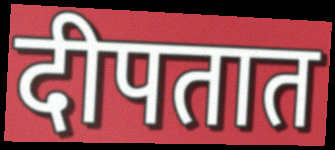
दीपतात